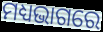
ମଧ୍ୟଭାଗରେ